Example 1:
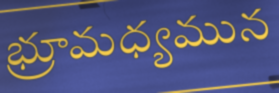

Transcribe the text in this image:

భ్రూమధ్యమున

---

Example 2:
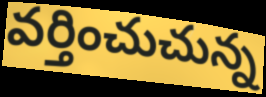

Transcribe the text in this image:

వర్తించుచున్న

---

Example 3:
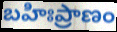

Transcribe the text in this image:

బహిఃప్రాణం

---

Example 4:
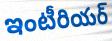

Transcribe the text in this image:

ఇంటీరియర్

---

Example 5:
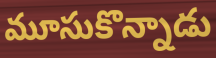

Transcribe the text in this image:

మూసుకొన్నాడు